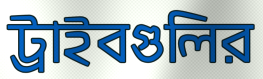
ট্রাইবগুলির